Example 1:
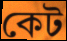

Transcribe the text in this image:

কেট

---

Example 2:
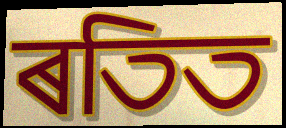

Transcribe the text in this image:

ৰতিত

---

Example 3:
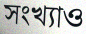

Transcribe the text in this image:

সংখ্যাও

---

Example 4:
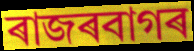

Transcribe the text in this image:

ৰাজৰবাগৰ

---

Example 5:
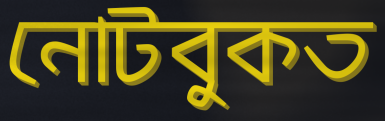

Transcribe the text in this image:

নোটবুকত